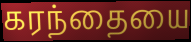
கரந்தையை